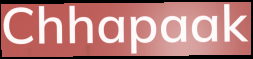
Chhapaak